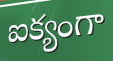
ఐక్యంగా